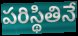
పరిస్థితినే